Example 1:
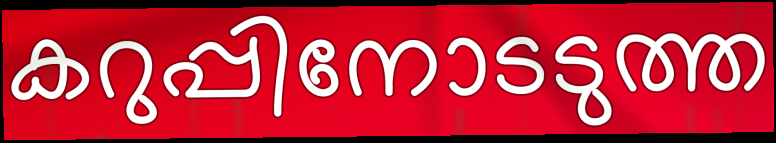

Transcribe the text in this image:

കറുപ്പിനോടടുത്ത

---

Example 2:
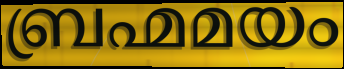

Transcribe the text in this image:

ബ്രഹ്മമയം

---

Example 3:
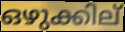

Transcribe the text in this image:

ഒഴുക്കില്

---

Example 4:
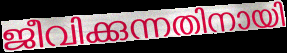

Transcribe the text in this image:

ജീവിക്കുന്നതിനായി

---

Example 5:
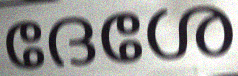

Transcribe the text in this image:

ദേശേ